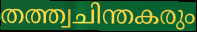
തത്ത്വചിന്തകരും